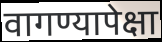
वागण्यापेक्षा